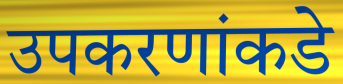
उपकरणांकडे